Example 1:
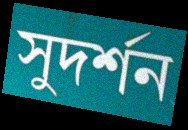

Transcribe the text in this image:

সুদৰ্শন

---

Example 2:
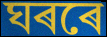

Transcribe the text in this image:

ঘৰৰে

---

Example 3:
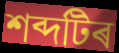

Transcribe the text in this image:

শব্দটিৰ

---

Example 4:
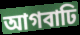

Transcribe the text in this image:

আগবাঢি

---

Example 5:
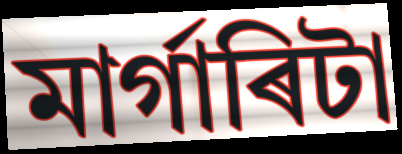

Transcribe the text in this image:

মাৰ্গাৰিটা